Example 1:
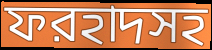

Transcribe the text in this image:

ফরহাদসহ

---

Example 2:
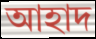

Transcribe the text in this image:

আহাদ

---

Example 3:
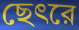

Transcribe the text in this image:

ছেৎরে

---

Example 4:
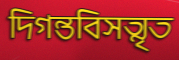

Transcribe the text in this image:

দিগন্তবিসত্মৃত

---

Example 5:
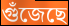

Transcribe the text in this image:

গুঁজেছে